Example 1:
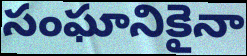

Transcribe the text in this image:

సంఘానికైనా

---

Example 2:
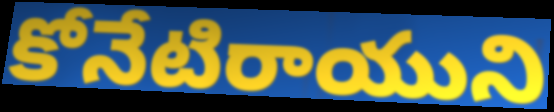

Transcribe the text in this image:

కోనేటిరాయుని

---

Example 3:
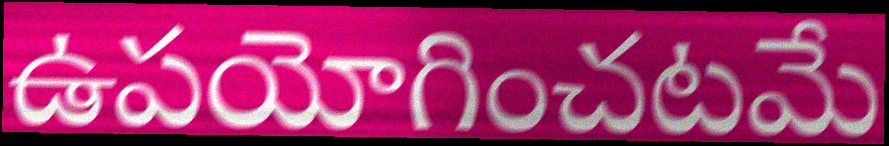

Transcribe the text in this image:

ఉపయోగించటమే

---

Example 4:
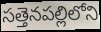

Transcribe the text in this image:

సత్తెనపల్లిలోని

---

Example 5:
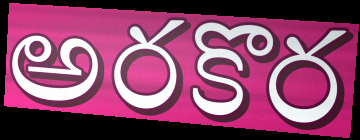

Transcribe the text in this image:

అరకొర